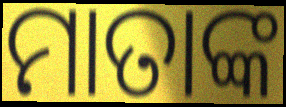
ମାତାଙ୍କ